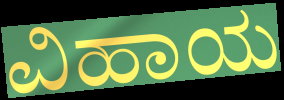
ವಿಹಾಯ